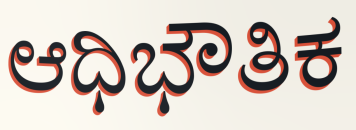
ಆಧಿಭೌತಿಕ